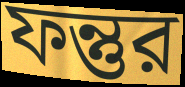
ফন্তুর